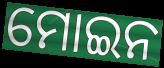
ମୋଇନ